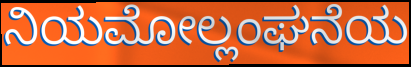
ನಿಯಮೋಲ್ಲಂಘನೆಯ